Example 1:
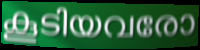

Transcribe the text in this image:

കൂടിയവരോ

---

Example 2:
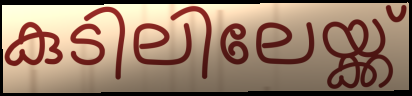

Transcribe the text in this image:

കുടിലിലേയ്ക്ക്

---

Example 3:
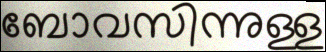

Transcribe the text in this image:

ബോവസിന്നുള്ള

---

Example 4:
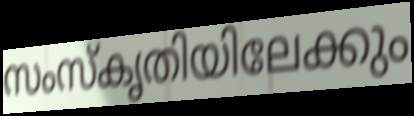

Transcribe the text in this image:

സംസ്കൃതിയിലേക്കും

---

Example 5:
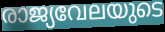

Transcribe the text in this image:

രാജ്യവേലയുടെ